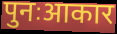
पुनःआकार